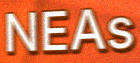
NEAs